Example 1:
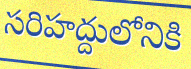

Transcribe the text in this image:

సరిహద్దులోనికి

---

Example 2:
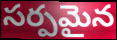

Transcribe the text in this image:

సర్పమైన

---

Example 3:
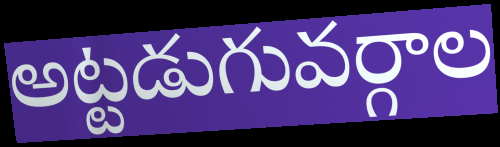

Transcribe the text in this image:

అట్టడుగువర్గాల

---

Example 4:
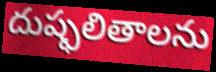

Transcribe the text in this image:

దుష్ఫలితాలను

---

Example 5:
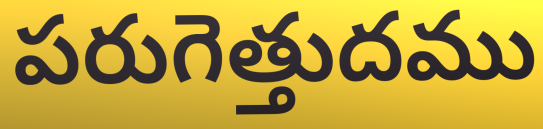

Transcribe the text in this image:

పరుగెత్తుదము